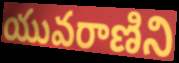
యువరాణిని